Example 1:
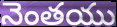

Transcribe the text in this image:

నెంతయు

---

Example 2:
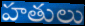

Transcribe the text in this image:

హతులు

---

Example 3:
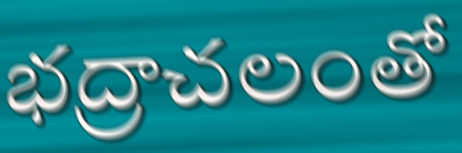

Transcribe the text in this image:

భద్రాచలంతో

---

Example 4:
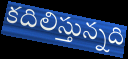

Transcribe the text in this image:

కదిలిస్తున్నది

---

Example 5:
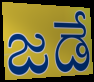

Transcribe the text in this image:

జడే